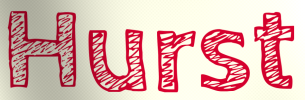
Hurst